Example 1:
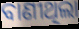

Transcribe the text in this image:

ବାଣୀଥିଲା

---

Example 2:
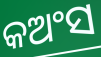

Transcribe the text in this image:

କଅଂସ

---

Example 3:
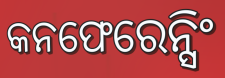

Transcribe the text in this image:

କନଫେରେନ୍ସିଂ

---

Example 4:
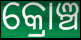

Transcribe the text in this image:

କ୍ରୋଞ୍ଚ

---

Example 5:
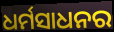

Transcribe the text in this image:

ଧର୍ମସାଧନର